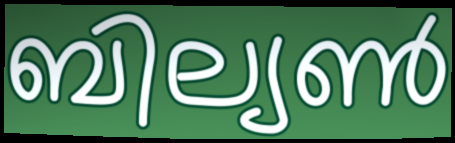
ബില്യൺ